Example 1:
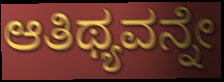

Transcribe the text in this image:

ಆತಿಥ್ಯವನ್ನೇ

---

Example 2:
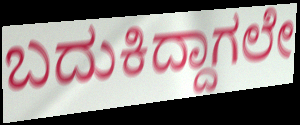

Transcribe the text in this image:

ಬದುಕಿದ್ದಾಗಲೇ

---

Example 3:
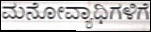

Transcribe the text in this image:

ಮನೋವ್ಯಾಧಿಗಳಿಗೆ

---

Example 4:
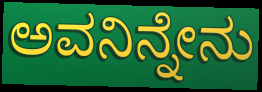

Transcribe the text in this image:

ಅವನಿನ್ನೇನು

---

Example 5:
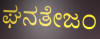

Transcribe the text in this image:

ಘನತೇಜಂ